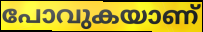
പോവുകയാണ്